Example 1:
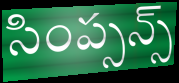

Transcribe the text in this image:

సింప్సన్స్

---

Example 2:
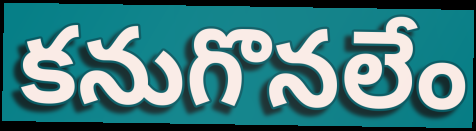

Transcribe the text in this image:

కనుగొనలేం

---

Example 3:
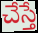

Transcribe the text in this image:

చేస్తే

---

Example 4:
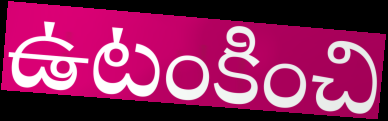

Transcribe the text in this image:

ఉటంకించి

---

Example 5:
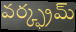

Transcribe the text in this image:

వర్క్ఫ్రమ్